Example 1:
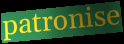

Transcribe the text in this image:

patronise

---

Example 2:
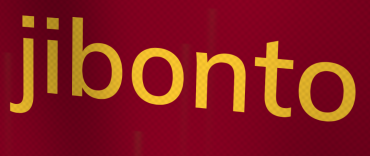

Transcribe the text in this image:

jibonto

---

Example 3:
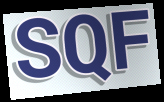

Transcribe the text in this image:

SQF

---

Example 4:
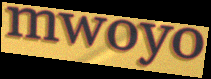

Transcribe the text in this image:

mwoyo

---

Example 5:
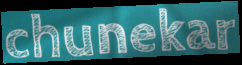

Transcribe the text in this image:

chunekar